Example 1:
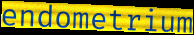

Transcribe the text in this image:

endometrium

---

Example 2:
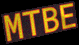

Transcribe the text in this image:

MTBE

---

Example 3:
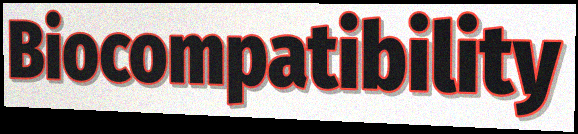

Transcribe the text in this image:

Biocompatibility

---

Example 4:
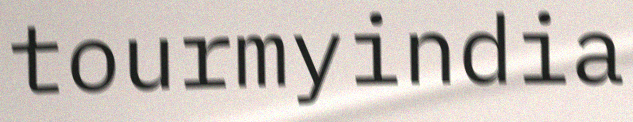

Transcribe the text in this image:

tourmyindia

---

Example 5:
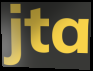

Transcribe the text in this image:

jta